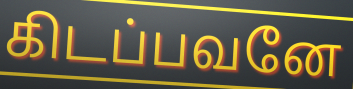
கிடப்பவனே